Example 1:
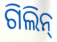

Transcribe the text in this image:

ଗିଲିନ୍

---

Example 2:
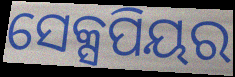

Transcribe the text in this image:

ସେକ୍ସପିୟର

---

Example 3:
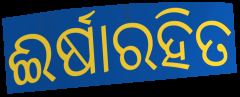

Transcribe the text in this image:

ଈର୍ଷାରହିତ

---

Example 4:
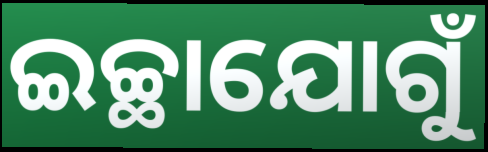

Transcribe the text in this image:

ଇଚ୍ଛାଯୋଗୁଁ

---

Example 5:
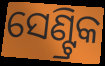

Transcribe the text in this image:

ସେଣ୍ଟ୍ରିକ